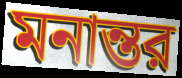
মনান্তর